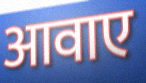
आवाए